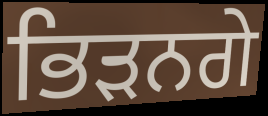
ਭਿੜਨਗੇ